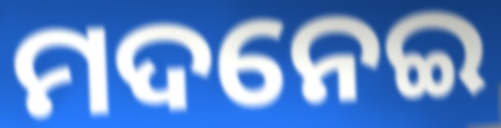
ମଦନେଇ